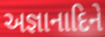
અજ્ઞાનાદિને